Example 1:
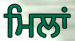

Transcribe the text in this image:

ਮਿਲਾਂ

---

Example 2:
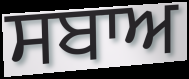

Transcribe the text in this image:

ਸਬਾਅ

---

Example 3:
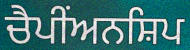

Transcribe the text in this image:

ਚੈਪੀਂਅਨਸ਼ਿਪ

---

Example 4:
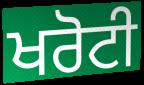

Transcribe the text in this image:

ਖਰੋਟੀ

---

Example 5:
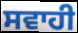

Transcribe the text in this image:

ਸਵਾਹੀ